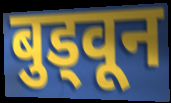
बुड्वून